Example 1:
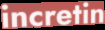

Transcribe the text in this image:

incretin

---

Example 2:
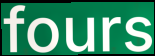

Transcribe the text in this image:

fours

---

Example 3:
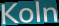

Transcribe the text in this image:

Koln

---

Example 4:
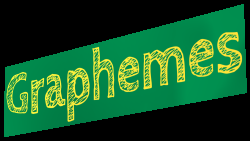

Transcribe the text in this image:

Graphemes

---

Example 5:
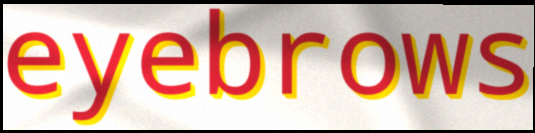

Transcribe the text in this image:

eyebrows